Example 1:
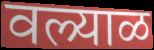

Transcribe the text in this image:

वल्याळ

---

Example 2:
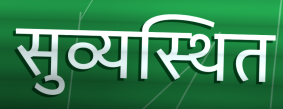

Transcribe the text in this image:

सुव्यस्थित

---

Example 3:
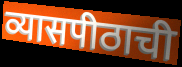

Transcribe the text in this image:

व्यासपीठाची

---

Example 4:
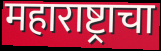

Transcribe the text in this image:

महाराष्ट्राचा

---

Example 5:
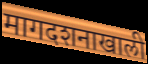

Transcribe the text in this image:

मागदशनाखाली